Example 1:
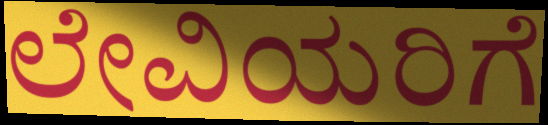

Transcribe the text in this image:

ಲೇವಿಯರಿಗೆ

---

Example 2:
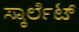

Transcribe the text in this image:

ಸ್ಕಾರ್ಲೆಟ್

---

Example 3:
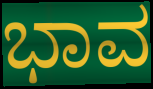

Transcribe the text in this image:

ಭಾವ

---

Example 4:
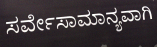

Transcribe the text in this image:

ಸರ್ವೇಸಾಮಾನ್ಯವಾಗಿ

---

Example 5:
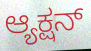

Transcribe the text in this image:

ಆ್ಯಕ್ಷನ್